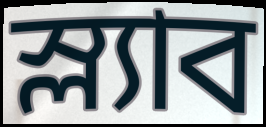
স্ল্যাব